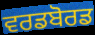
ਵਰਡਬੋਰਡ